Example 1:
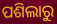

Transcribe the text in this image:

ପଶିଲାରୁ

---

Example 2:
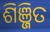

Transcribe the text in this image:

ଶିଞ୍ଜିତ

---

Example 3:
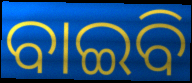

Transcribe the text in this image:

ବାଇବି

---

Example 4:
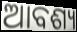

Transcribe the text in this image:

ଆବଶ୍ୟ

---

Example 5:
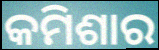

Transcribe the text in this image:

କମିଶାର